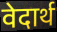
वेदार्थ